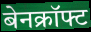
बेनक्रॉफ्ट